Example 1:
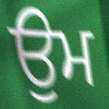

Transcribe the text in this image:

ਉਮ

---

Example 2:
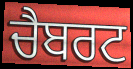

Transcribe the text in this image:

ਚੈਬਰਟ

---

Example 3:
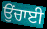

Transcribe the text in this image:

ਉਂਚਾਈ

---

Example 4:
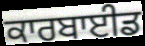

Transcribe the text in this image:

ਕਾਰਬਾਈਡ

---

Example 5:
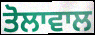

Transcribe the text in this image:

ਤੋਲਾਵਾਲ